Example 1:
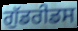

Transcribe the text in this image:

ਗੁੱਡਰੀਡਸ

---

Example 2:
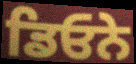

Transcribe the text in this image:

ਡਿਓਨੇ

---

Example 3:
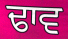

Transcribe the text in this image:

ਢਾਵ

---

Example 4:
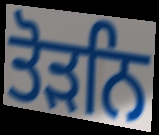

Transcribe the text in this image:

ਤੋੜਨਿ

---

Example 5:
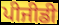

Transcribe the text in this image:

ਪੀਜੀਡੀ